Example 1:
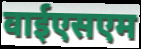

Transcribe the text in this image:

वाईएसएम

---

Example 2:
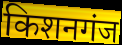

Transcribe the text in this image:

किशनगंज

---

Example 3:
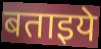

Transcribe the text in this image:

बताइये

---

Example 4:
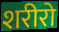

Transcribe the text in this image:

शरीरो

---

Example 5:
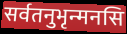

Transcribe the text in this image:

सर्वतनुभृन्मनसि